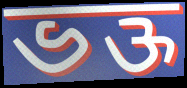
ভক্ত